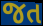
જત